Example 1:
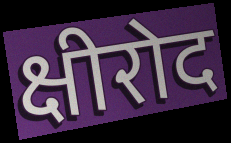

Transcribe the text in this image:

क्षीरोद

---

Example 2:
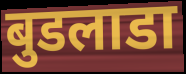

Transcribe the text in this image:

बुडलाडा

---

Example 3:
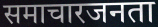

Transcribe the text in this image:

समाचारजनता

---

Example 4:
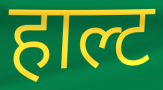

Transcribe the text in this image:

हाल्ट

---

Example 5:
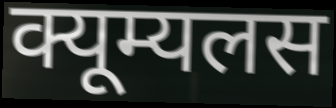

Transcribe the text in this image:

क्यूम्यलस